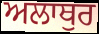
ਅਲਾਥੁਰ